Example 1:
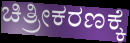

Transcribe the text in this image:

ಚಿತ್ರೀಕರಣಕ್ಕೆ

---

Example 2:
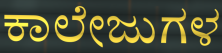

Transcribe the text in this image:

ಕಾಲೇಜುಗಳ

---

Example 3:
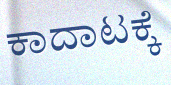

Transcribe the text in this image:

ಕಾದಾಟಕ್ಕೆ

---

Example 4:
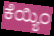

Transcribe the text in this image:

ಕೆಯ್ಯಿಂ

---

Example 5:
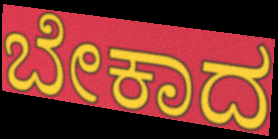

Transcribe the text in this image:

ಬೇಕಾದ